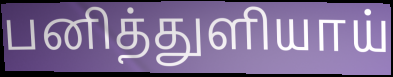
பனித்துளியாய்